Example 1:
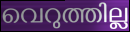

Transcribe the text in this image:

വെറുത്തില്ല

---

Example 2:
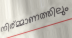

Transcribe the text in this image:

നിര്മ്മാണത്തിലും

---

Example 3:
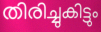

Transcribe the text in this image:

തിരിച്ചുകിട്ടും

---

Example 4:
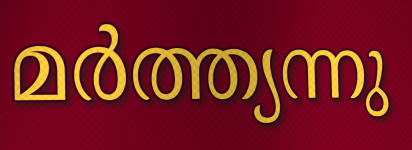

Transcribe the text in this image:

മർത്ത്യന്നു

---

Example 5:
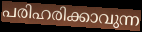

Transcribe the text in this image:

പരിഹരിക്കാവുന്ന